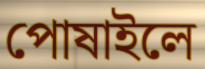
পোষাইলে